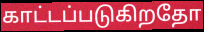
காட்டப்படுகிறதோ